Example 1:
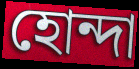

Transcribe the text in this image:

হোন্দা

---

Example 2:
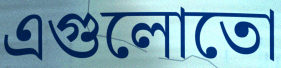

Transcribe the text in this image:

এগুলোতো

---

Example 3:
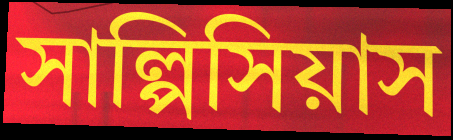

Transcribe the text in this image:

সাল্পিসিয়াস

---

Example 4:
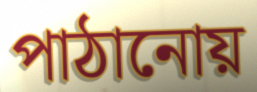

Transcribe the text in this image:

পাঠানোয়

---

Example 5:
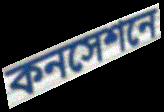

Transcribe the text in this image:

কনসেশনে